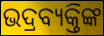
ଭଦ୍ରବ୍ୟକ୍ତିଙ୍କ